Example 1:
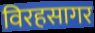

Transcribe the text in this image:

विरहसागर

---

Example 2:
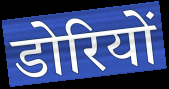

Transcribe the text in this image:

डोरियों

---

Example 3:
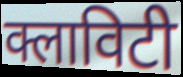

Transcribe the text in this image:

क्लाविटी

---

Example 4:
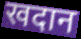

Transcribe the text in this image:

खदान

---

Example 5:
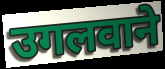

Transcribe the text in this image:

उगलवाने